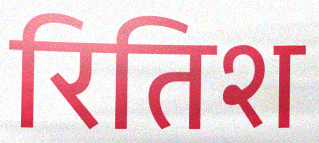
रितिश